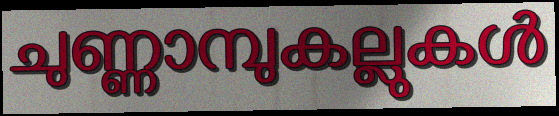
ചുണ്ണാമ്പുകല്ലുകൾ